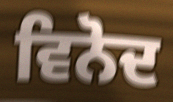
ਵਿਨੋਦ